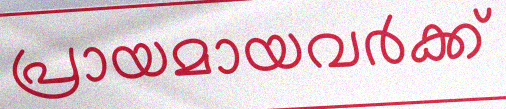
പ്രായമായവർക്ക്